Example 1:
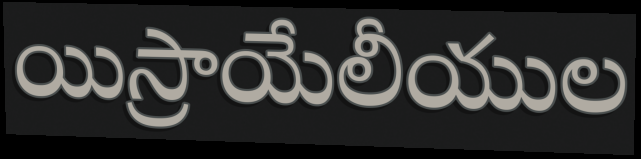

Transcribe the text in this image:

యిస్రాయేలీయుల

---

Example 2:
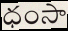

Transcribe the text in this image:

ధంసా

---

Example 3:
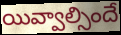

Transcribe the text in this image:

యివ్వాల్సిందే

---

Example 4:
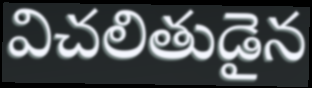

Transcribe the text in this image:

విచలితుడైన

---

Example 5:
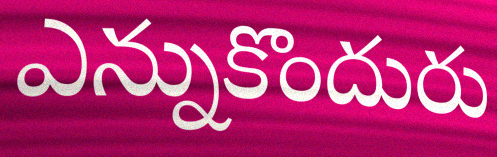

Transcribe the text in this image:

ఎన్నుకొందురు